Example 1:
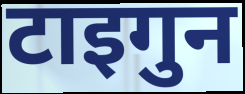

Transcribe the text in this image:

टाइगुन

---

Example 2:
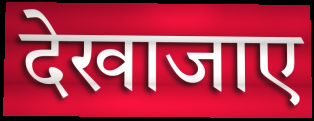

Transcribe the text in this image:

देखाजाए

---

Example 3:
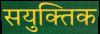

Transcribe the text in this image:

सयुक्तिक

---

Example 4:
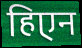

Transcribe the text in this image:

हिएन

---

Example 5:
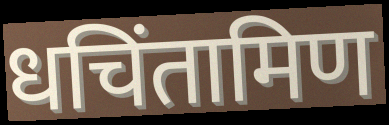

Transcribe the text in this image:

धचिंतामिण